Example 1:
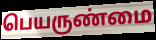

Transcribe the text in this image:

பெயருண்மை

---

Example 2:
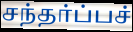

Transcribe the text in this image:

சந்தர்ப்பச்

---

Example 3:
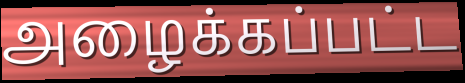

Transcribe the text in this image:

அழைக்கப்பட்ட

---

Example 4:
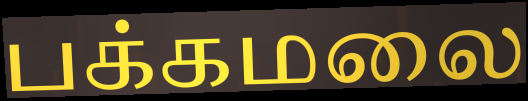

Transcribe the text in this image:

பக்கமலை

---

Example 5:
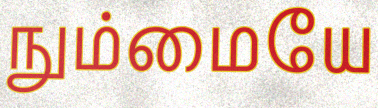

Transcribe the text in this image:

நும்மையே